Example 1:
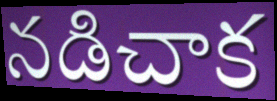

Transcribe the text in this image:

నడిచాక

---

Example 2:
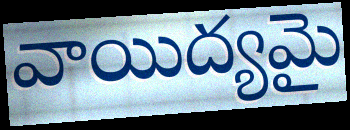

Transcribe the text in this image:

వాయిద్యమై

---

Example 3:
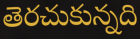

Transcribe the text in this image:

తెరచుకున్నది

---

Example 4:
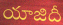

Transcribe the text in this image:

యాజిదీ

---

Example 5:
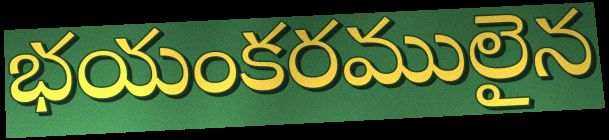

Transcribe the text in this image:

భయంకరములైన